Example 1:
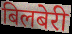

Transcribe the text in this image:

बिलबेरी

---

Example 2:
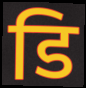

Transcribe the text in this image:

डि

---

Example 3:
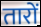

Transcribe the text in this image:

तारों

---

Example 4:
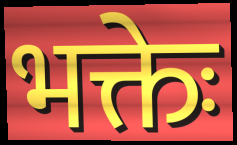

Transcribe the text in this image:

भक्तेः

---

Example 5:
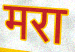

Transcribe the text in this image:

मरा